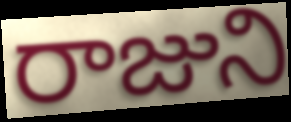
రాజుని